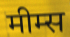
मीम्‍स